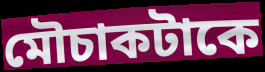
মৌচাকটাকে